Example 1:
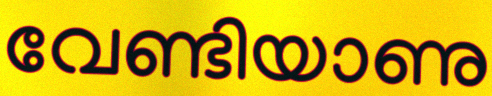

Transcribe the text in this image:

വേണ്ടിയാണു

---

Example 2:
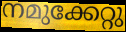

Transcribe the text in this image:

നമുക്കേറ്റു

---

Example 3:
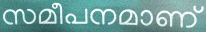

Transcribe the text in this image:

സമീപനമാണ്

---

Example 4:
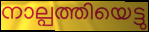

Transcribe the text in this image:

നാല്പത്തിയെട്ടു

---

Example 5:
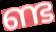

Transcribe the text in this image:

ണ്ട